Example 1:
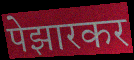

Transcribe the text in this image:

पेझारकर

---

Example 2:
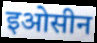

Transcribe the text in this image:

इओसीन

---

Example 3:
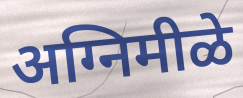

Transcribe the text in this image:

अग्निमीळे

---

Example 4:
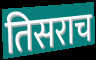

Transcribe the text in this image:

तिसराच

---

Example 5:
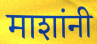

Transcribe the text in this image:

माशांनी